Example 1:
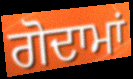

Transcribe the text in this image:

ਗੋਦਾਮਾਂ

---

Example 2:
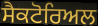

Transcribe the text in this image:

ਸੈਕਟੋਰਿਅਲ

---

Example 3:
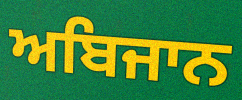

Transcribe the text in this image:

ਅਬਿਜਾਨ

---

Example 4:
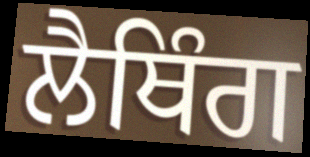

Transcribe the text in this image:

ਲੈਥਿੰਗ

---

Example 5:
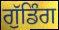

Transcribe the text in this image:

ਗੁੱਡਿੰਗ